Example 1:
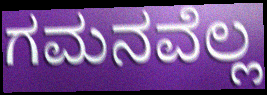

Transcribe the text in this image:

ಗಮನವೆಲ್ಲ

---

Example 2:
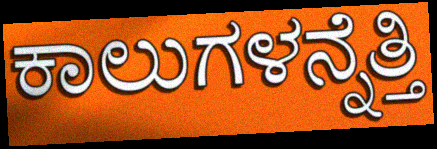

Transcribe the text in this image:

ಕಾಲುಗಳನ್ನೆತ್ತಿ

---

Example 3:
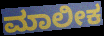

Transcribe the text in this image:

ಮಾಲೀಕ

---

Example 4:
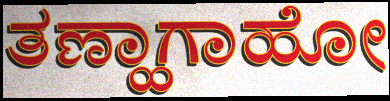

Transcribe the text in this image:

ತಣ್ಹಾಗಾಹೋ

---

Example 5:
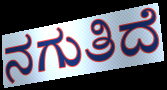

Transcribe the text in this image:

ನಗುತಿದೆ